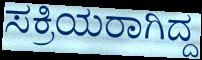
ಸಕ್ರಿಯರಾಗಿದ್ದ